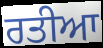
ਰਤੀਆ